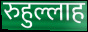
रुहुल्लाह